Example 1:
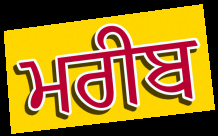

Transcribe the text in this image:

ਮਰੀਬ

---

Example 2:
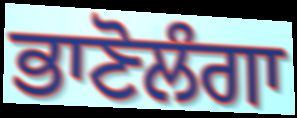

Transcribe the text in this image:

ਭਾਣੋਲੰਗਾ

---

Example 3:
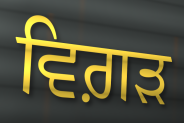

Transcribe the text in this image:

ਵਿਗ਼ੜ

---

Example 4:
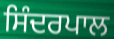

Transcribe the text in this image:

ਸਿੰਦਰਪਾਲ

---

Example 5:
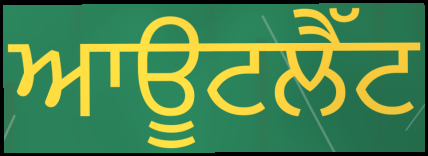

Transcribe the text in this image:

ਆਊਟਲੈੱਟ